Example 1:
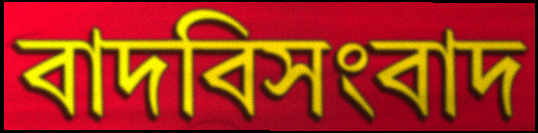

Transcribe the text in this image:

বাদবিসংবাদ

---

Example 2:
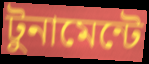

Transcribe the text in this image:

টুনামেন্টে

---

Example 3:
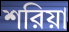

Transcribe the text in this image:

শরিয়া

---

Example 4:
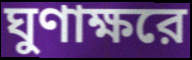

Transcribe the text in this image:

ঘুণাক্ষরে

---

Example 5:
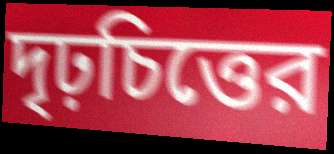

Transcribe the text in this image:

দৃঢ়চিত্তের